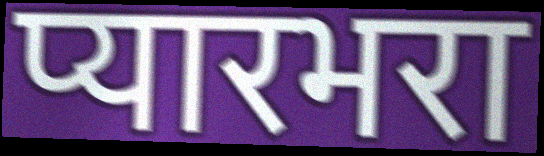
प्यारभरा